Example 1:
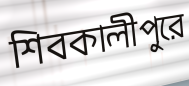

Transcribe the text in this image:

শিবকালীপুরে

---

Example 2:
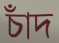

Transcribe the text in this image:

চাঁদ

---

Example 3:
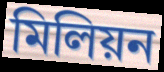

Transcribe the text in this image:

মিলিয়ন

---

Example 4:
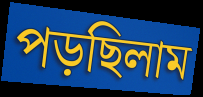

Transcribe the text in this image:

পড়ছিলাম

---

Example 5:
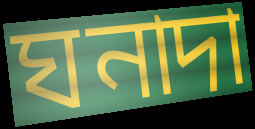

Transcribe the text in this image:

ঘনাদা